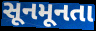
સૂનમૂનતા